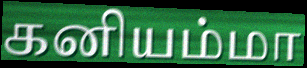
கனியம்மா